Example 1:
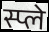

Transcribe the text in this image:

स्प्ले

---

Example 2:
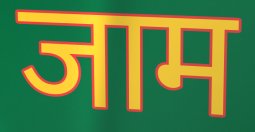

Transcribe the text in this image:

जाम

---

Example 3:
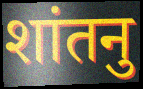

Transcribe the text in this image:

शांतनु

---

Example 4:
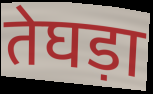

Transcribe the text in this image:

तेघड़ा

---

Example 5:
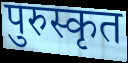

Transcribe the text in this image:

पुरुस्कृत